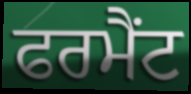
ਫਰਮੈਂਟ